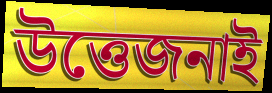
উত্তেজনাই